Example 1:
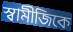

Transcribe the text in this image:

স্বামীজিকে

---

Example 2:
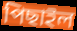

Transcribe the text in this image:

পিছাইল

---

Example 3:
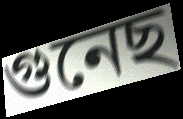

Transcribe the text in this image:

গুনেছ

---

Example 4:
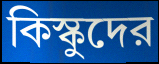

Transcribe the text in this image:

কিস্কুদের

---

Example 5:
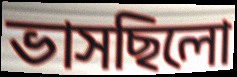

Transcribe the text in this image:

ভাসছিলো